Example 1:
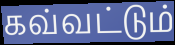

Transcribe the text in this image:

கவ்வட்டும்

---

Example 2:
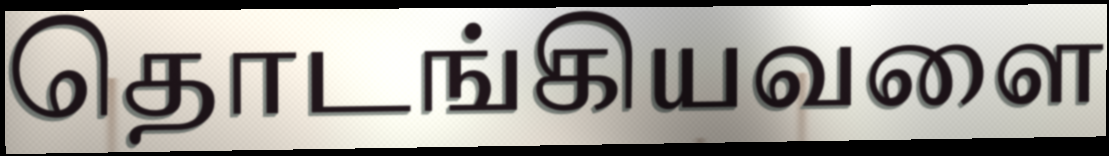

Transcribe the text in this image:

தொடங்கியவளை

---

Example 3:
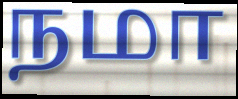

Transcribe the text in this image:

நமா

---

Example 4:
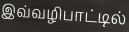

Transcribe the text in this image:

இவ்வழிபாட்டில்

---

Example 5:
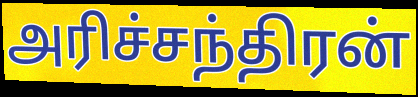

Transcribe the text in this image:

அரிச்சந்திரன்